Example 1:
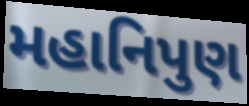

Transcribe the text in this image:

મહાનિપુણ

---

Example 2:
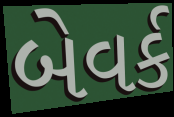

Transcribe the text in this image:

બેવર્ક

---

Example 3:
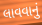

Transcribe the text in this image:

લાવવાનું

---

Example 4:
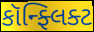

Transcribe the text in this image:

કૉન્ફ્લિક્ટ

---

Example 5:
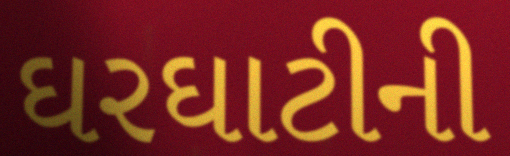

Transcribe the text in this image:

ઘરઘાટીની